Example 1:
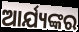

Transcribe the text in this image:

ଆର୍ଯ୍ୟଙ୍କର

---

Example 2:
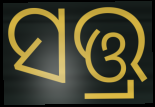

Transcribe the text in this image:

ସତ୍ତ୍ର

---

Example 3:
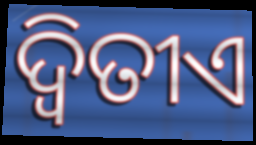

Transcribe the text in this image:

ଦ୍ୱିତୀଏ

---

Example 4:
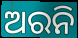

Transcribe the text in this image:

ଅରନି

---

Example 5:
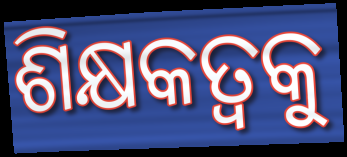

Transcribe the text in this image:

ଶିକ୍ଷକତ୍ଵକୁ